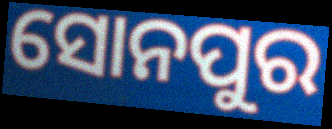
ସୋନପୁର